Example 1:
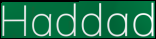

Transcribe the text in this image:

Haddad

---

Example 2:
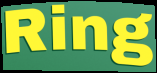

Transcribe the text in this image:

Ring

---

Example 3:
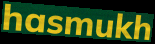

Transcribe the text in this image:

hasmukh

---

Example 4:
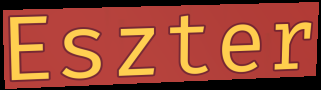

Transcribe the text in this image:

Eszter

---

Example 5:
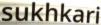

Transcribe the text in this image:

sukhkari